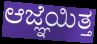
ಆಜ್ಞೆಯಿತ್ತ